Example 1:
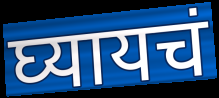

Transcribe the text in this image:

घ्यायचं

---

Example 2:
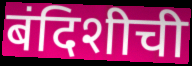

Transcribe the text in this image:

बंदिशीची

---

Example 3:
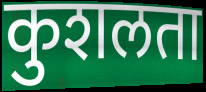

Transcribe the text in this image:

कुशलता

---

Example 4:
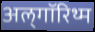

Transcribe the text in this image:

अल्गॉरिथ्म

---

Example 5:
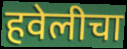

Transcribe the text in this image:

हवेलीचा